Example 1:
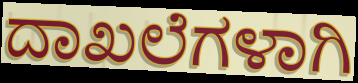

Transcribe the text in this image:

ದಾಖಲೆಗಳಾಗಿ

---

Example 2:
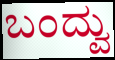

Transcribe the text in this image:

ಬಂದ್ವು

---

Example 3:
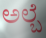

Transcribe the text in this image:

ಅಲ್ಬೆ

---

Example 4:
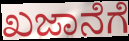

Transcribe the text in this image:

ಖಜಾನೆಗೆ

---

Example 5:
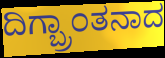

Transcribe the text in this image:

ದಿಗ್ಬ್ರಾಂತನಾದ